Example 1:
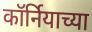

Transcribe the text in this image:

कॉर्नियाच्या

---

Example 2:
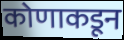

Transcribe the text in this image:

कोणाकडून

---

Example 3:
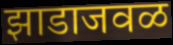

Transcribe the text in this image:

झाडाजवळ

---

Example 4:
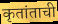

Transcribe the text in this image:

कृतांताची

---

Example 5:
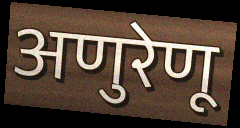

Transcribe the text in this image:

अणुरेणू